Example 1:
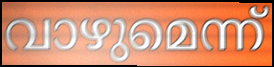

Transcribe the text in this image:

വാഴുമെന്ന്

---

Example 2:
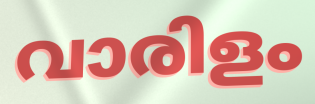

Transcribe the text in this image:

വാരിളം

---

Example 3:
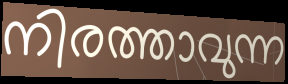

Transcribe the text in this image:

നിരത്താവുന്ന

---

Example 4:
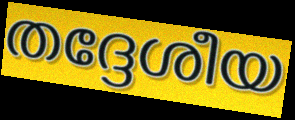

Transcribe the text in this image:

തദ്ദേശീയ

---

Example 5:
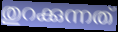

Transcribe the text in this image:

തുറക്കുന്നത്